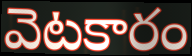
వెటకారం